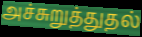
அச்சுறுத்துதல்